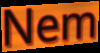
Nem